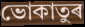
ভোকাতুৰ